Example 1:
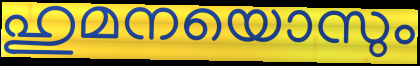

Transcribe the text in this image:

ഹുമനയൊസും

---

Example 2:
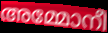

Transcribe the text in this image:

അമ്മോനീ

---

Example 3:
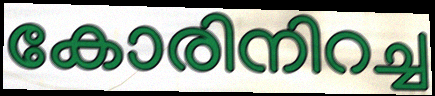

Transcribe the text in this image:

കോരിനിറച്ച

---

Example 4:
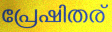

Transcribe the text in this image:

പ്രേഷിതര്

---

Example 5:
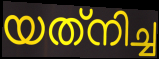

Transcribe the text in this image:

യത്‌നിച്ച